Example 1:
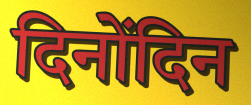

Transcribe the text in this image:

दिनोंदिन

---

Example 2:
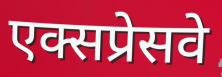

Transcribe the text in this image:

एक्सप्रेसवे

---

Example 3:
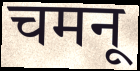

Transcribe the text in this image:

चमनू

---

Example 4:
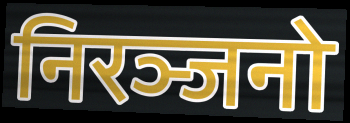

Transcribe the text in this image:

निरञ्जनो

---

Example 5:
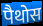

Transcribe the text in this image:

पैथोस